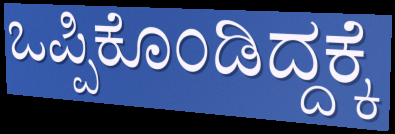
ಒಪ್ಪಿಕೊಂಡಿದ್ದಕ್ಕೆ